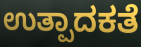
ಉತ್ಪಾದಕತೆ